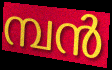
മ്പൻ